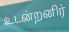
உடன்றனிர்